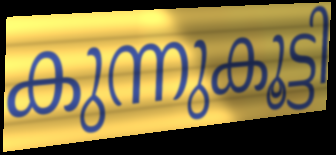
കുന്നുകൂട്ടി